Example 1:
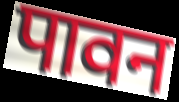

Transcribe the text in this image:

पावन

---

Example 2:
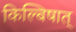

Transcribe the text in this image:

किल्बिषात्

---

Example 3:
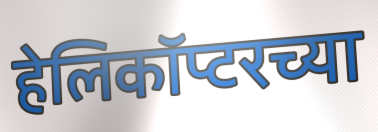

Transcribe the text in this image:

हेलिकॉप्टरच्या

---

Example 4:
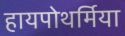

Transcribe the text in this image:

हायपोथर्मिया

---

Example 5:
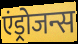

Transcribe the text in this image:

एंड्रोजन्स